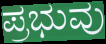
ಪ್ರಭುವು